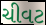
ચીવટ